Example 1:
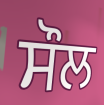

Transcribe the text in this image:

ਸੌਲ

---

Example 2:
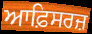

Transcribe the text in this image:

ਆਫ਼ਿਸਰਜ਼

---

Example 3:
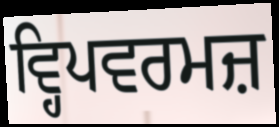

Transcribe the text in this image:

ਵ੍ਹਿਪਵਰਮਜ਼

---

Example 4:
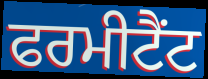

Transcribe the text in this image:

ਫਰਮੀਟੈਂਟ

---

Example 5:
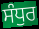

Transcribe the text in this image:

ਸੰਧੁਰ